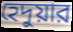
হেদুয়ার